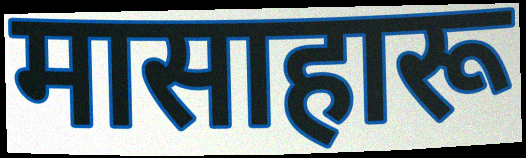
मासाहारू